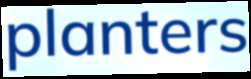
planters